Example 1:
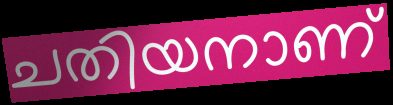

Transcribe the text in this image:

ചതിയനാണ്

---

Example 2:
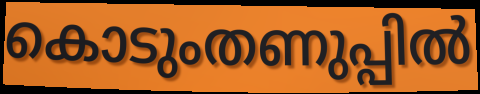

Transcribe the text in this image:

കൊടുംതണുപ്പിൽ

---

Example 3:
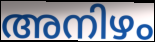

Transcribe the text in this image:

അനിഴം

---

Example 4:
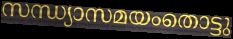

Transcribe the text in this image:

സന്ധ്യാസമയംതൊട്ടു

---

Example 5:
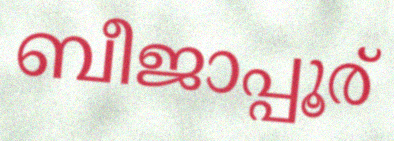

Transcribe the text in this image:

ബീജാപ്പൂര്